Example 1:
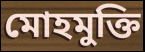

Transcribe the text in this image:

মোহমুক্তি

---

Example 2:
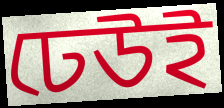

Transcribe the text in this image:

ঢেউই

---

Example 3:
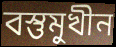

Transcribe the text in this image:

বস্তুমুখীন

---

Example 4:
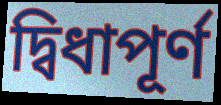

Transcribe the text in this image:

দ্বিধাপূর্ণ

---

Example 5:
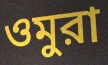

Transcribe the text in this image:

ওমুরা